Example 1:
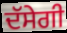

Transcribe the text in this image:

ਦੱਸੇਗੀ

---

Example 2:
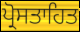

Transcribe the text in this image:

ਪ੍ਰੋਸਤਾਹਿਤ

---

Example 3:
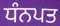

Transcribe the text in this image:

ਧੰਨਪਤ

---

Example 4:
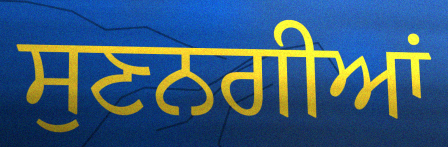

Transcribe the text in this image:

ਸੁਣਨਗੀਆਂ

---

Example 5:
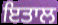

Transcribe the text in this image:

ਇਤਾਲ